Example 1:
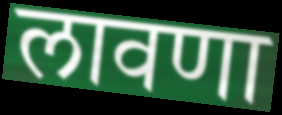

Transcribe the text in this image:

लावणा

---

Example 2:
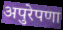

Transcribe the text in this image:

अपुरेपणा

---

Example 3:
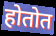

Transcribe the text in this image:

होतोत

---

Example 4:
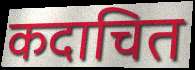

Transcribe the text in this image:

कदाचित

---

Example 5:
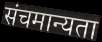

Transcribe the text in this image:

संचमान्यता